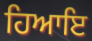
ਹਿਆਇ